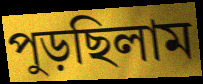
পুড়ছিলাম